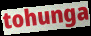
tohunga